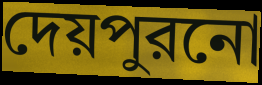
দেয়পুরনো